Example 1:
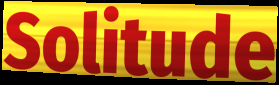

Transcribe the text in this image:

Solitude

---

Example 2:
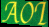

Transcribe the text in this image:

AOI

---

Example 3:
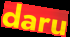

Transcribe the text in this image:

daru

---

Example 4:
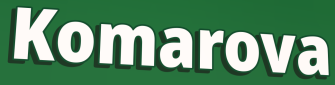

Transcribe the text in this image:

Komarova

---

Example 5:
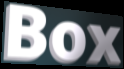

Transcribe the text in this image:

Box